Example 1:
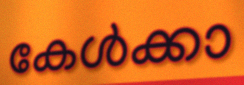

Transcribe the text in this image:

കേൾക്കാ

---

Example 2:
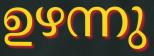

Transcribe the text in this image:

ഉഴന്നു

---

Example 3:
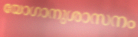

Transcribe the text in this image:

യോഗാനുശാസനം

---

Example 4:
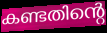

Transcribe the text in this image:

കണ്ടതിന്റെ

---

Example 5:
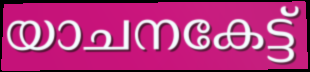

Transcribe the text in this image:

യാചനകേട്ട്